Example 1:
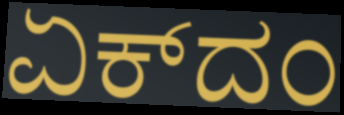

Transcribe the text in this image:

ಏಕ್‌ದಂ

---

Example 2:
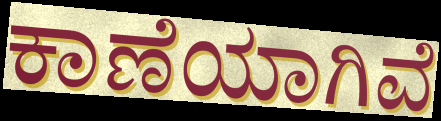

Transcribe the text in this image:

ಕಾಣೆಯಾಗಿವೆ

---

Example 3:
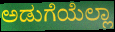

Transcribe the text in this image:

ಅಡುಗೆಯೆಲ್ಲಾ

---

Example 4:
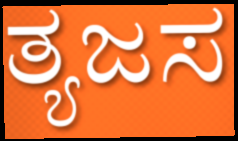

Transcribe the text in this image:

ತ್ಯಜಸ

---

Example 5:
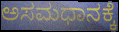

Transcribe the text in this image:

ಅಸಮಧಾನಕ್ಕೆ